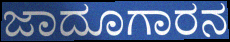
ಜಾದೂಗಾರನ